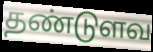
தண்டுளவ